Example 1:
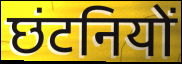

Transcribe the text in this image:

छंटनियों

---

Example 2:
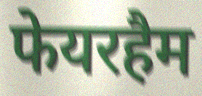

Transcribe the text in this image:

फेयरहैम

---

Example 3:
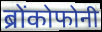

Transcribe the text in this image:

ब्रोंकोफोनी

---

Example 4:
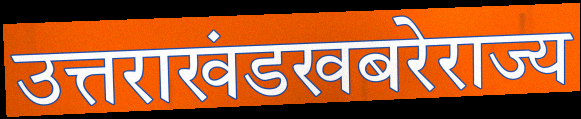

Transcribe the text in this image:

उत्तराखंडखबरेराज्य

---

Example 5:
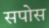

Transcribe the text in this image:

सपोस